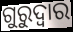
ଗୁରୁଦ୍ଵାର